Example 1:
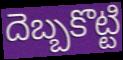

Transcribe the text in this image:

దెబ్బకొట్టి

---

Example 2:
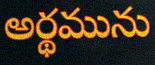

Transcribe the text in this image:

అర్థమును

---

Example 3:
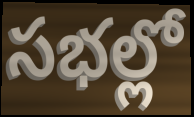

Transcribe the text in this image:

సభల్లో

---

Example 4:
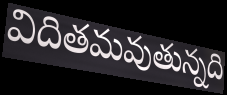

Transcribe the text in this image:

విదితమవుతున్నది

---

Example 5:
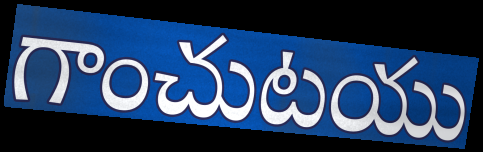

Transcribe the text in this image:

గాంచుటయు